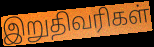
இறுதிவரிகள்